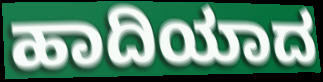
ಹಾದಿಯಾದ